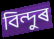
বিন্দুৰ